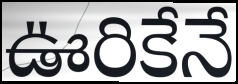
ఊరికేనే